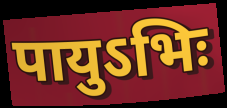
पायुऽभिः